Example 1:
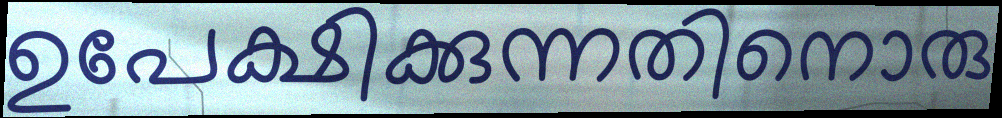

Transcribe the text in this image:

ഉപേക്ഷിക്കുന്നതിനൊരു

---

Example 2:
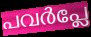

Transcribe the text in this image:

പവർപ്ലേ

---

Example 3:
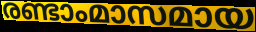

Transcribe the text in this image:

രണ്ടാംമാസമായ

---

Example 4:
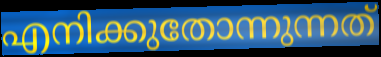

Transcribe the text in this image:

എനിക്കുതോന്നുന്നത്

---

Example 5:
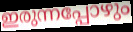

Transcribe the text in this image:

ഇരുന്നപ്പോഴും